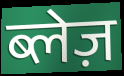
ब्लेज़